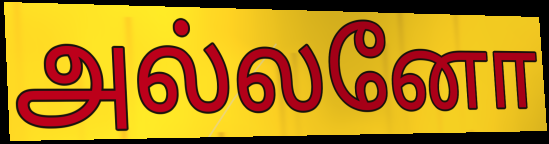
அல்லனோ